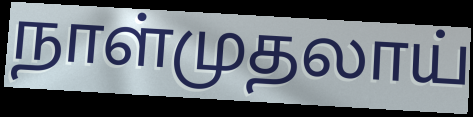
நாள்முதலாய்